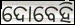
ଦୋବେହି